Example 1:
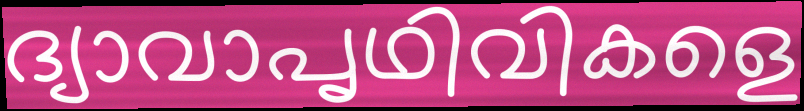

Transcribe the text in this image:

ദ്യാവാപൃഥിവികളെ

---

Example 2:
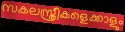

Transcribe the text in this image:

സകലസ്ത്രീകളെക്കാളും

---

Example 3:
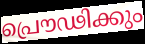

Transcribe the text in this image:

പ്രൌഢിക്കും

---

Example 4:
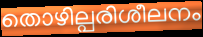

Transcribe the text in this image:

തൊഴില്പരിശീലനം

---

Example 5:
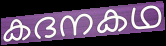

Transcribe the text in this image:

കദനകഥ